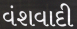
વંશવાદી